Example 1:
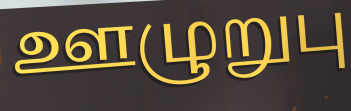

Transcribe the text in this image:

ஊழுறுபு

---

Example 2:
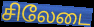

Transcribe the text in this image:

சிலேடை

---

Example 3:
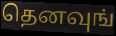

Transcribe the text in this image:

தெனவுங்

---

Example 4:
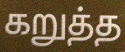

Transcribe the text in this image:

கறுத்த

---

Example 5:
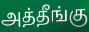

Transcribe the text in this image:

அத்தீங்கு